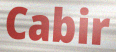
Cabir